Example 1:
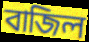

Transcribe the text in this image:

বাজিল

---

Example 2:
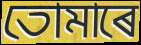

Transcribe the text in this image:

তোমাৰে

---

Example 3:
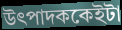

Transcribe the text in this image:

উৎপাদককেইটা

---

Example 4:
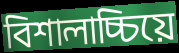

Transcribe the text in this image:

বিশালাচ্চিয়ে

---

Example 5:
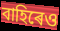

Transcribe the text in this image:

বাহিৰেও